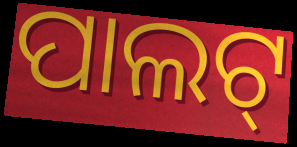
ପାଲଟ୍